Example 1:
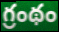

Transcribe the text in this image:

గ్రంథం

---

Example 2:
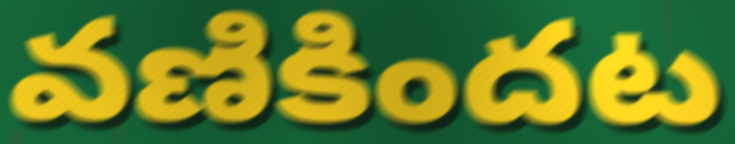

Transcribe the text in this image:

వణికిందట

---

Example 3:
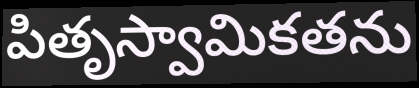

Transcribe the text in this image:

పితృస్వామికతను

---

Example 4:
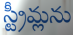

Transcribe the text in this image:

స్ట్రీమ్లను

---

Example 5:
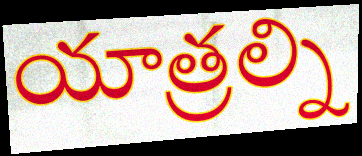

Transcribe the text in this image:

యాత్రల్ని